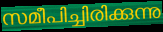
സമീപിച്ചിരിക്കുന്നു